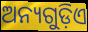
ଅନ୍ୟଗୁଡ଼ିଏ